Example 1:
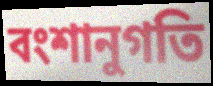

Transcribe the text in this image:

বংশানুগতি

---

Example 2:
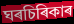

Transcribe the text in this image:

ঘৰচিৰিকাৰ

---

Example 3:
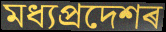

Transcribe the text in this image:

মধ্যপ্ৰদেশৰ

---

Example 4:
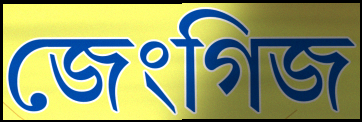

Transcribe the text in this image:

জেংগিজ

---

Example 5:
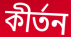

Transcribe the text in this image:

কীৰ্তন